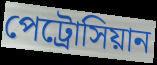
পেট্রোসিয়ান